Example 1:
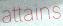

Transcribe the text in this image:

attains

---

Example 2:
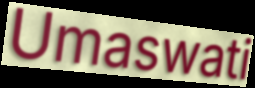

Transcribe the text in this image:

Umaswati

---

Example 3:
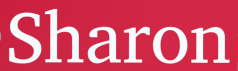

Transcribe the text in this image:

Sharon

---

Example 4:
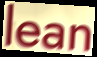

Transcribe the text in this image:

lean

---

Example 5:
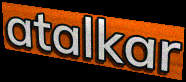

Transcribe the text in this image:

atalkar